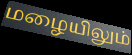
மழையிலும்